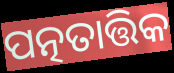
ପତ୍ନତାତ୍ତିକ